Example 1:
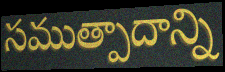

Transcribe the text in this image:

సముత్పాదాన్ని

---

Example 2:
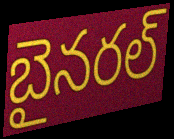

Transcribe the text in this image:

బైనరల్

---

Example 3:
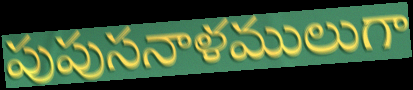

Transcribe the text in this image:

పుపుసనాళములుగా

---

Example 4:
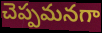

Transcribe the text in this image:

చెప్పమనగా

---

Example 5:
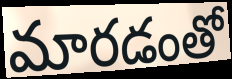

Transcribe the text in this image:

మారడంతో